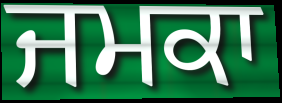
ਜਮਕਾ